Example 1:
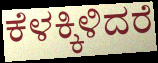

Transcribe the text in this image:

ಕೆಳಕ್ಕಿಳಿದರೆ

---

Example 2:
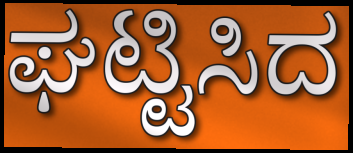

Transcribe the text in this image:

ಘಟ್ಟಿಸಿದ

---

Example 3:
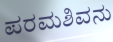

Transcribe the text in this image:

ಪರಮಶಿವನು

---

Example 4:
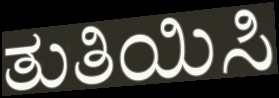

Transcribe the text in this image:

ತುತಿಯಿಸಿ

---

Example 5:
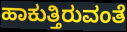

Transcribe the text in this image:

ಹಾಕುತ್ತಿರುವಂತೆ